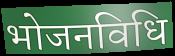
भोजनविधि